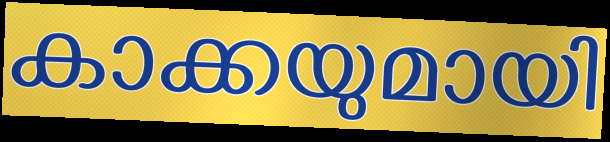
കാക്കയുമായി